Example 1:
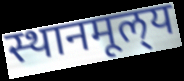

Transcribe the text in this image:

स्थानमूल्य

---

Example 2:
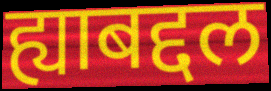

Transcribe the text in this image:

ह्याबद्दल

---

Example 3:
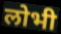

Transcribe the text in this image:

लोभी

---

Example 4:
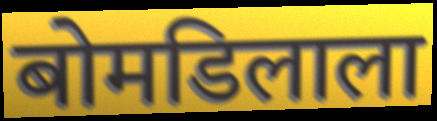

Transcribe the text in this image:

बोमडिलाला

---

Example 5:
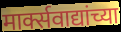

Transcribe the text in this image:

मार्क्सवाद्यांच्या